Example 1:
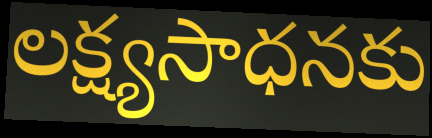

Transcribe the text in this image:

లక్ష్యసాధనకు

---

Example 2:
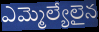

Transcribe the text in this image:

ఎమ్మెల్యేలైన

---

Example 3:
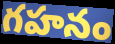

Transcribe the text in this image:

గహనం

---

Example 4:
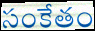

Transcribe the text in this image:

సంకేతం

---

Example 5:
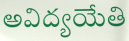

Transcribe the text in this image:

అవిద్యయేతి